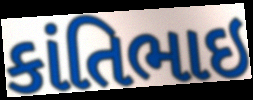
કાંતિભાઇ